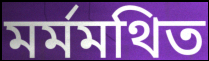
মর্মমথিত